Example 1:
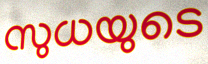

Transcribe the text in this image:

സുധയുടെ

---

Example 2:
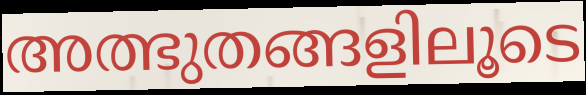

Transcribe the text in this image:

അത്ഭുതങ്ങളിലൂടെ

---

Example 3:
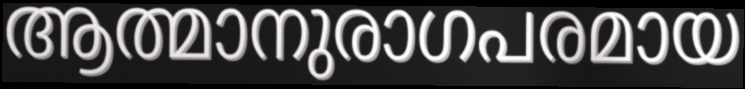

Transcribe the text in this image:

ആത്മാനുരാഗപരമായ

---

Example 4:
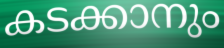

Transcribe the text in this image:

കടക്കാനും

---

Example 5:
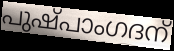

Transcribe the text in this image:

പുഷ്പാംഗദന്